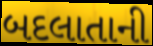
બદલાતાની